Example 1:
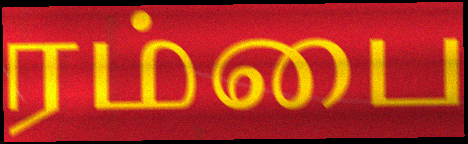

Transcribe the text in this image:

ரம்பை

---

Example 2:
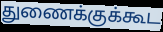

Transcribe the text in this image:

துணைக்குக்கூட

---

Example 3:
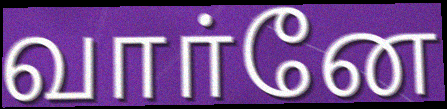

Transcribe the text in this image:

வார்னே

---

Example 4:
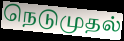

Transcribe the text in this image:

நெடுமுதல்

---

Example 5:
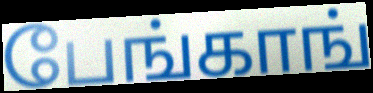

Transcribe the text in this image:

பேங்காங்